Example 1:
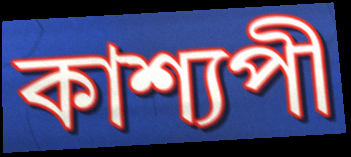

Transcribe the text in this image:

কাশ্যপী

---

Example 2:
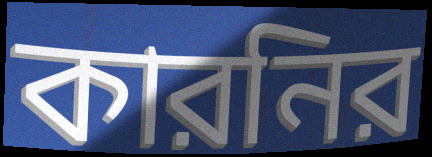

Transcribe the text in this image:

কারনির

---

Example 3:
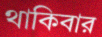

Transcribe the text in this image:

থাকিবার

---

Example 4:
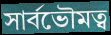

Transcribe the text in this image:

সার্বভৌমত্ব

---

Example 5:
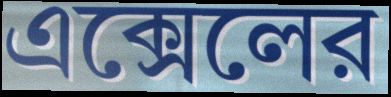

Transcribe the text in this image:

এক্সেলের